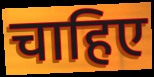
चाहिए